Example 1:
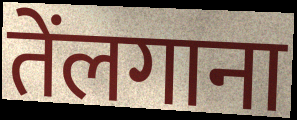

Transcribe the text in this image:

तेंलगाना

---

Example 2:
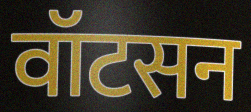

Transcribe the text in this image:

वॉटसन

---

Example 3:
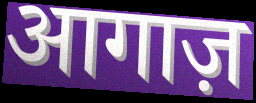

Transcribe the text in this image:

आगाज़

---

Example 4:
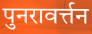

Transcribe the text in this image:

पुनरावर्त्तन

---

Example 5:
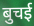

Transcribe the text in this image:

बुचई